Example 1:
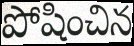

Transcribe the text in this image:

పోషించిన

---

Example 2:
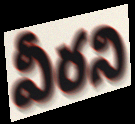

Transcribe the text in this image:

వీరని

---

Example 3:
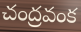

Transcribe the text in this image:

చంద్రవంక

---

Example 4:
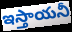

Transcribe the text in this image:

ఇస్తాయనీ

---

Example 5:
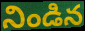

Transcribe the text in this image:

నిండిన